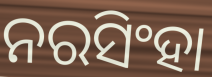
ନରସିଂହା